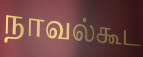
நாவல்கூட